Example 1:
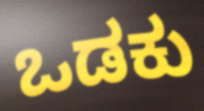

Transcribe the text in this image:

ಒಡಕು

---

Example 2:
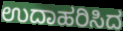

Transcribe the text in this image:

ಉದಾಹರಿಸಿದ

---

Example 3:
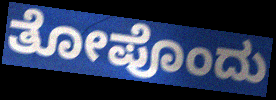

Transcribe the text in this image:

ತೋಪೊಂದು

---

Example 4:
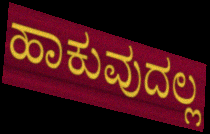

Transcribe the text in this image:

ಹಾಕುವುದಲ್ಲ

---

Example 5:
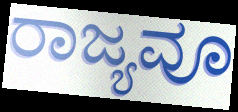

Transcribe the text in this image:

ರಾಜ್ಯವೂ